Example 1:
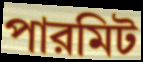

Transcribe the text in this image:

পারমিট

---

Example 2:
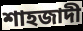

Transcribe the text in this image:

শাহজাদী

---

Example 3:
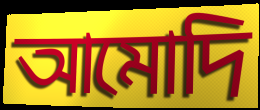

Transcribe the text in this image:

আমোদি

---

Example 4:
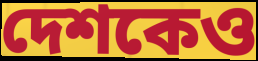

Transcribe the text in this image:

দেশকেও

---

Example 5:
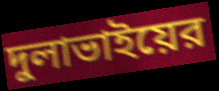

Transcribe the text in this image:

দুলাভাইয়ের